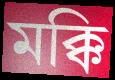
মক্কি